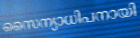
സൈന്യാധിപനായി